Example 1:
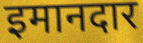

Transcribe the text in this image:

इमानदार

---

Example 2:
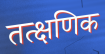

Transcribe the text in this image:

तत्क्षणिक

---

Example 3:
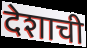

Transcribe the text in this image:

देशाची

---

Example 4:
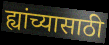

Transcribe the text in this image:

ह्यांच्यासाठी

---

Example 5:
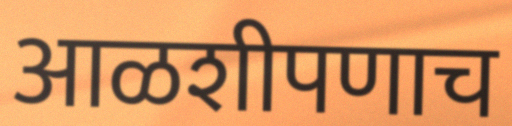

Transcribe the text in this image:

आळशीपणाच